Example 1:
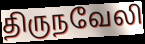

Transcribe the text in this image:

திருநவேலி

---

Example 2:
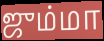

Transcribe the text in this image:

ஜும்மா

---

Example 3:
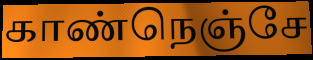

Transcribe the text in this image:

காண்நெஞ்சே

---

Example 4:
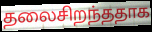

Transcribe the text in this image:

தலைசிறந்ததாக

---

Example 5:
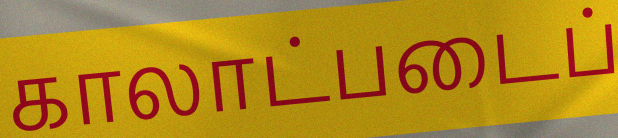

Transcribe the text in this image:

காலாட்படைப்